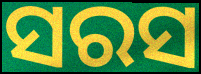
ସରସ